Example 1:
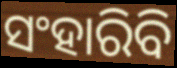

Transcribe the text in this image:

ସଂହାରିବି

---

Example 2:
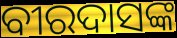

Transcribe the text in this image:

ବୀରଦାସଙ୍କ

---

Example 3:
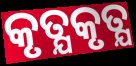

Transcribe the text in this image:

କୃତ୍ଯକୃତ୍ଯ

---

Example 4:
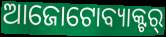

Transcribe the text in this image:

ଆଜୋଟୋବ୍ଯାକ୍ଟର୍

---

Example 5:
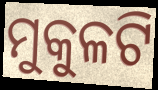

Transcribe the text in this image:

ମୁକୁଳଟି